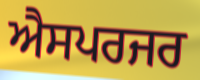
ਐਸਪਰਜਰ